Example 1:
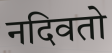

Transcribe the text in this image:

नदिवतो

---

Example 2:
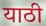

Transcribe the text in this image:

याठी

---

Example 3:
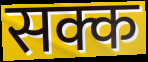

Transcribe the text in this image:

सक्क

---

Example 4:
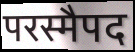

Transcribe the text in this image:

परस्मैपद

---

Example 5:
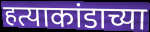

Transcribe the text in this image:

हत्याकांडाच्या